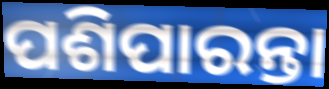
ପଶିପାରନ୍ତା